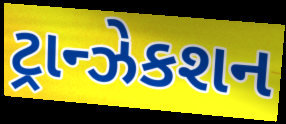
ટ્રાન્ઝેકશન